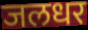
जलधर